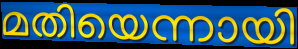
മതിയെന്നായി